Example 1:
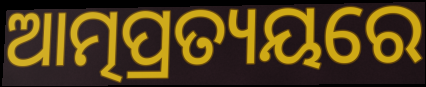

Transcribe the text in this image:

ଆତ୍ମପ୍ରତ୍ୟୟରେ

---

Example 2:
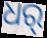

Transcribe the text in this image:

ଧର୍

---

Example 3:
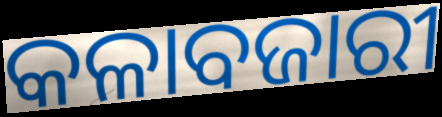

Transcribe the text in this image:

କଳାବଜାରୀ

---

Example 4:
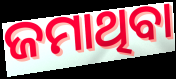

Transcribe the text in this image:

ଜମାଥିବା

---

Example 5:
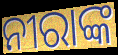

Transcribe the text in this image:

ନୀରାଙ୍କ